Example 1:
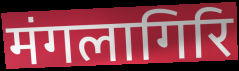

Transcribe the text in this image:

मंगलागिरि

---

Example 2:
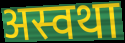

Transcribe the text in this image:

अस्वथा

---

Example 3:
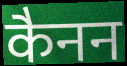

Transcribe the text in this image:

कैनन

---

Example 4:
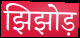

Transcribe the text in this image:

झिझोड़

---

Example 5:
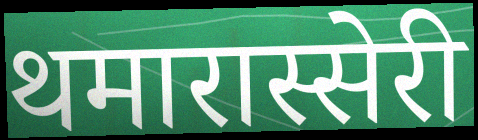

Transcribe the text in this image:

थमारास्सेरी